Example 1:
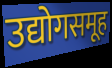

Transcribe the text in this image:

उद्योगसमूह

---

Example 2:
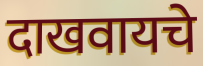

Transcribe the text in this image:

दाखवायचे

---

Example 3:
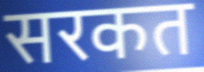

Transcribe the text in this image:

सरकत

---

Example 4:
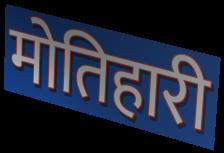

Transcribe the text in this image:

मोतिहारी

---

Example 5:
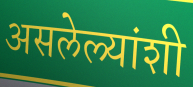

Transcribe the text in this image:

असलेल्यांशी